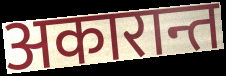
अकारान्त